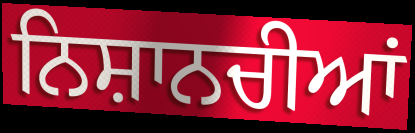
ਨਿਸ਼ਾਨਚੀਆਂ